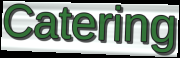
Catering